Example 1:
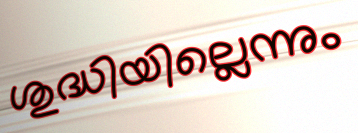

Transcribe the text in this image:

ശുദ്ധിയില്ലെന്നും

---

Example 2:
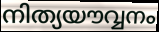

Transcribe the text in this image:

നിത്യയൗവ്വനം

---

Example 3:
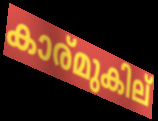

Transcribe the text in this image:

കാര്മുകില്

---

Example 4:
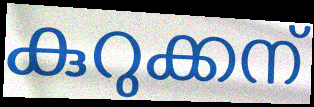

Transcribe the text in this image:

കുറുക്കന്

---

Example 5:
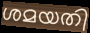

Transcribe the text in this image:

ശമയതി